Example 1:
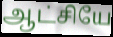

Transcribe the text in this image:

ஆட்சியே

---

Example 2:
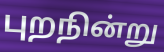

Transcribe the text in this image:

புறநின்று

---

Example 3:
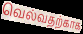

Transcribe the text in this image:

வெல்வதற்காக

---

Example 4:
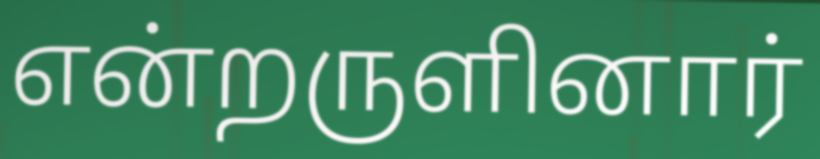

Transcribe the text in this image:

என்றருளினார்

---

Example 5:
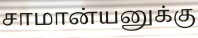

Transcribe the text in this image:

சாமான்யனுக்கு